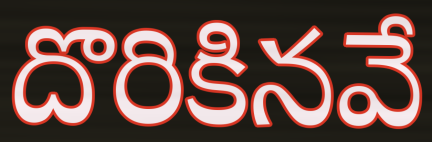
దొరికినవే